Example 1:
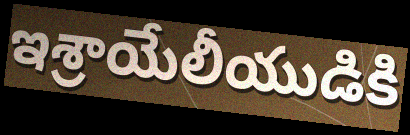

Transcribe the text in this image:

ఇశ్రాయేలీయుడికి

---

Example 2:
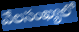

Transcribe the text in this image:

వేలసంఖ్యలో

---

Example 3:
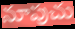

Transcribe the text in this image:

నూపుచు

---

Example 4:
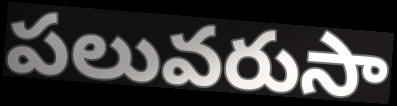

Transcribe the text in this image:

పలువరుసా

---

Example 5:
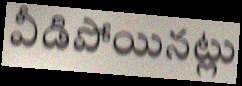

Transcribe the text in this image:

వీడిపోయినట్లు